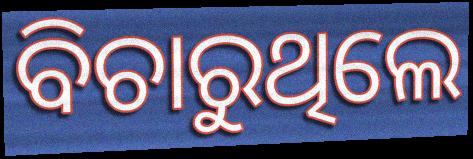
ବିଚାରୁଥିଲେ